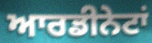
ਆਰਡੀਨੇਟਾਂ